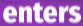
enters